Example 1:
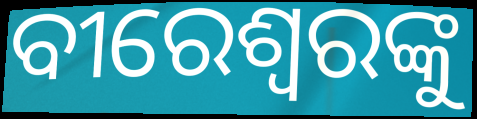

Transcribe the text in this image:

ବୀରେଶ୍ୱରଙ୍କୁ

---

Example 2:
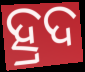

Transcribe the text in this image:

ହ୍ରଦ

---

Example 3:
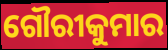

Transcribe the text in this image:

ଗୌରୀକୁମାର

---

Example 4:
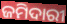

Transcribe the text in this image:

ଜମିଦାରୀ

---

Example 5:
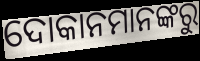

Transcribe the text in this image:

ଦୋକାନମାନଙ୍କରୁ